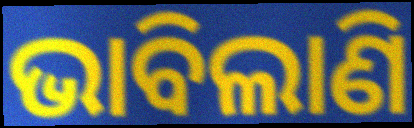
ଭାବିଲାଣି